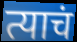
त्याचं